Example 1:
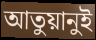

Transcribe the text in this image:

আতুয়ানুই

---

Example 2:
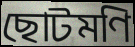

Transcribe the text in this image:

ছোটমণি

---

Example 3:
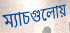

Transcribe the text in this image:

ম্যাচগুলোয়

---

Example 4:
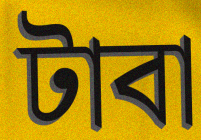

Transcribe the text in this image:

টাবা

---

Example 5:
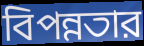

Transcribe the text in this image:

বিপন্নতার